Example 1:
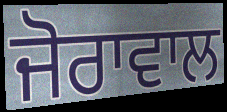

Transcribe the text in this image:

ਜੋਰਾਵਾਲ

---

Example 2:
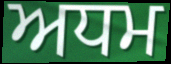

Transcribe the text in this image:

ਅਧਮ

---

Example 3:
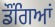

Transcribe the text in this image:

ਡੌਂਗਿਆਂ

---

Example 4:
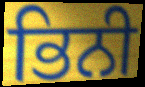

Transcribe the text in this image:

ਭਿਨੀ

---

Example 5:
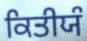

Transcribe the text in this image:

ਕਿਤੀਯੰ